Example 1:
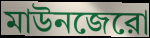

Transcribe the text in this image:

মাউনজেরো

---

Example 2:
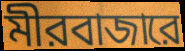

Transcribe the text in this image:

মীরবাজারে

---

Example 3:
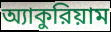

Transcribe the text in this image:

অ্যাকুরিয়াম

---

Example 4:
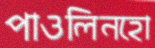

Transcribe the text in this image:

পাওলিনহো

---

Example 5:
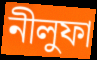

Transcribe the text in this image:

নীলুফা